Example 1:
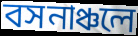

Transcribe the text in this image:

বসনাঞ্চলে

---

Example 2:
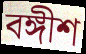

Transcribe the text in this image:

বঙ্গীশ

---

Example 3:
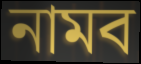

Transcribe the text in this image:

নামব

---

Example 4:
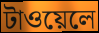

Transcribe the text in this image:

টাওয়েলে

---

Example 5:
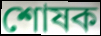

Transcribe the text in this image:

শোষক